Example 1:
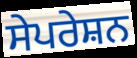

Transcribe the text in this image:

ਸੇਪਰੇਸ਼ਨ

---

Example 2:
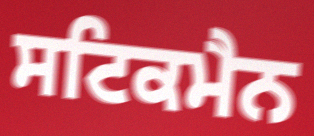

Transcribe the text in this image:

ਸਟਿਕਮੈਨ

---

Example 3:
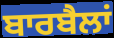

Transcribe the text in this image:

ਬਾਰਬੈਲਾਂ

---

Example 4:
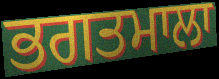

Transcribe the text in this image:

ਭਗਤਮਾਲਾ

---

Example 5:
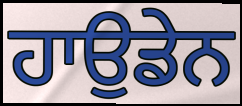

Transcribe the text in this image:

ਹਾਉਡੇਨ